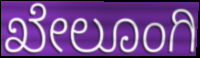
ಖೇಲೂಂಗಿ